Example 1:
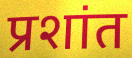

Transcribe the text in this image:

प्रशांत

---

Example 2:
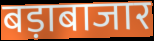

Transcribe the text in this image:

बड़ाबाजार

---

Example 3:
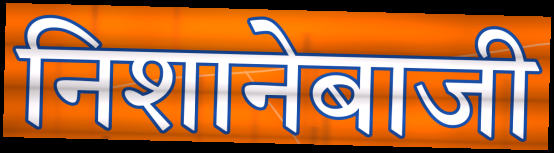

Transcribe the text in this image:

निशानेबाजी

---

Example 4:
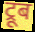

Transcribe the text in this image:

ट्रूब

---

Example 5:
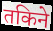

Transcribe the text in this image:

तकिने